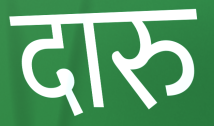
दारु